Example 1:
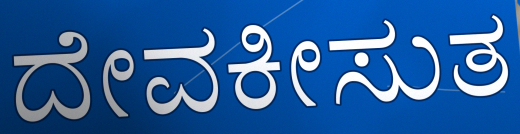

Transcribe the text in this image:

ದೇವಕೀಸುತ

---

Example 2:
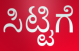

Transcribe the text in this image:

ಸಿಟ್ಟಿಗೆ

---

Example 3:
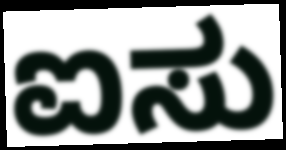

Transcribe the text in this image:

ಐಸು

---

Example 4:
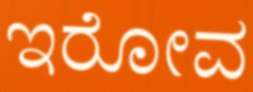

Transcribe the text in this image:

ಇರೋವ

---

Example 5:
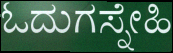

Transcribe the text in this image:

ಓದುಗಸ್ನೇಹಿ